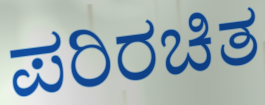
ಪರಿರಚಿತ